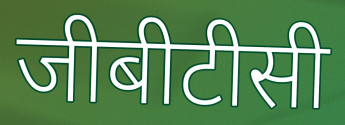
जीबीटीसी